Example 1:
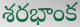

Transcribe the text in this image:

శరభాంక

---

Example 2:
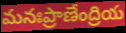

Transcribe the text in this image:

మనఃప్రాణేంద్రియ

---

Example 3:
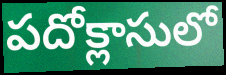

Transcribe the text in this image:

పదోక్లాసులో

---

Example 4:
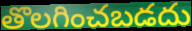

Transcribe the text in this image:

తొలగించబడదు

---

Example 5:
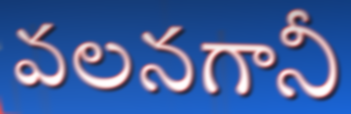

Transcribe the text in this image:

వలనగానీ